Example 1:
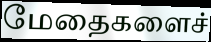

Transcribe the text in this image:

மேதைகளைச்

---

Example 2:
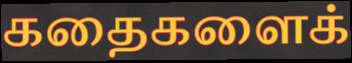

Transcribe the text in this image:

கதைகளைக்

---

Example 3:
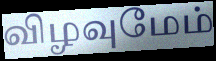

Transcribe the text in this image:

விழவுமேம்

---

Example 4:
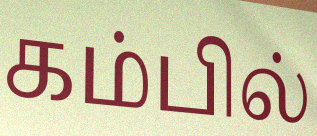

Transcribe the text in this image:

கம்பில்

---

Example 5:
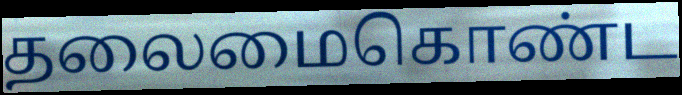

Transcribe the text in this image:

தலைமைகொண்ட